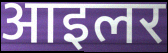
आइलर